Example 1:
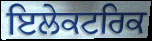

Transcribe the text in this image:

ਇਲੇਕਟਰਿਕ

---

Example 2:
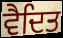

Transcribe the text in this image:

ਵੈਦਿਤ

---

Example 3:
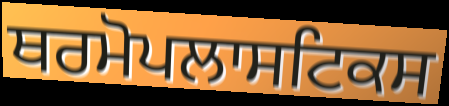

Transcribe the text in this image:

ਥਰਮੋਪਲਾਸਟਿਕਸ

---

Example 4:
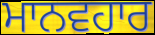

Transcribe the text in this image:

ਮਾਨਵਹਾਰ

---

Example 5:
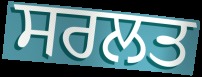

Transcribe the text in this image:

ਸਰਲਤ